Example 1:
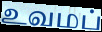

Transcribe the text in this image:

உவமப்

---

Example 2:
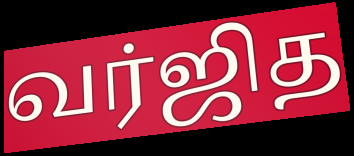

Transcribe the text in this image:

வர்ஜித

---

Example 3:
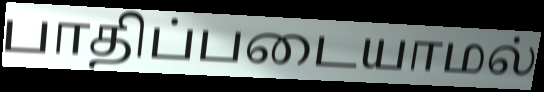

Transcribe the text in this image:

பாதிப்படையாமல்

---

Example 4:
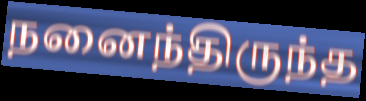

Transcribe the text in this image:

நனைந்திருந்த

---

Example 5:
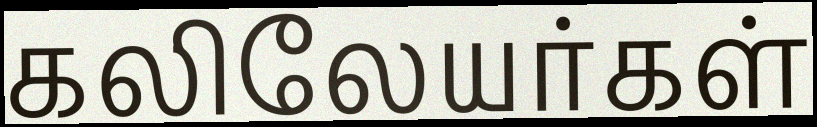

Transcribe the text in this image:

கலிலேயர்கள்